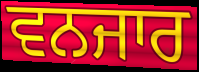
ਵਨਜਾਰ